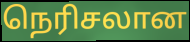
நெரிசலான